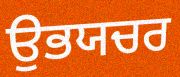
ਉਭਯਚਰ